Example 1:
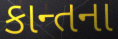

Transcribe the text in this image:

કાન્તના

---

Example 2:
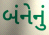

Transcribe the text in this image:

બંનેનું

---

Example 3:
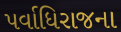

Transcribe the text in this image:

પર્વાધિરાજના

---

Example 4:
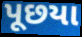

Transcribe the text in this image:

પૂછયા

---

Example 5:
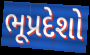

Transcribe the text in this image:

ભૂપ્રદેશો